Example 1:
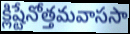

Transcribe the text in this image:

క్లిష్టేనోత్తమవాససా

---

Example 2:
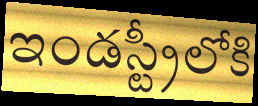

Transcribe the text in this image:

ఇండస్ట్రీలోకి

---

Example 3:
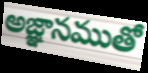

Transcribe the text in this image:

అజ్ఞానముతో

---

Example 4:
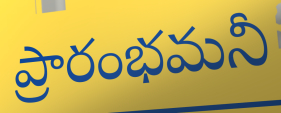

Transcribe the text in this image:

ప్రారంభమనీ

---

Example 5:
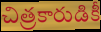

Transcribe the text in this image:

చిత్రకారుడికీ